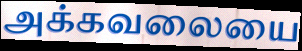
அக்கவலையை